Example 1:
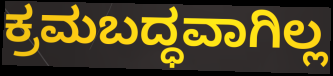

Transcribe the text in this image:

ಕ್ರಮಬದ್ಧವಾಗಿಲ್ಲ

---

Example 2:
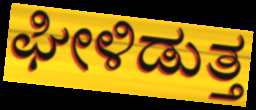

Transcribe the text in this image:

ಘೀಳಿಡುತ್ತ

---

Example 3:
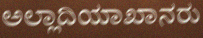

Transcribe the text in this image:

ಅಲ್ಲಾದಿಯಾಖಾನರು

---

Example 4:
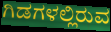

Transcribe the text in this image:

ಗಿಡಗಳಲ್ಲಿರುವ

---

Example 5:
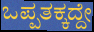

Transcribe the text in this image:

ಒಪ್ಪತಕ್ಕದ್ದೇ